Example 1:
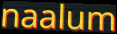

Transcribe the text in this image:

naalum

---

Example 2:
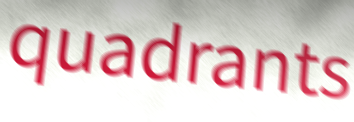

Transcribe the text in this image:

quadrants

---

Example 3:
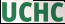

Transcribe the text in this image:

UCHC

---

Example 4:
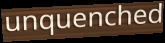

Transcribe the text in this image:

unquenched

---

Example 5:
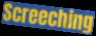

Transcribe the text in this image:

Screeching